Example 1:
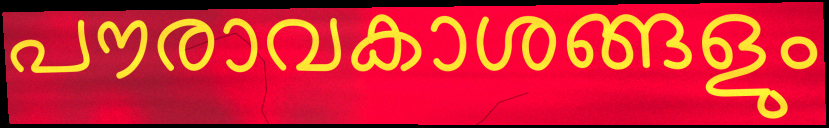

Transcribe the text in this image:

പൗരാവകാശങ്ങളും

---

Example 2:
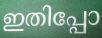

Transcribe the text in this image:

ഇതിപ്പോ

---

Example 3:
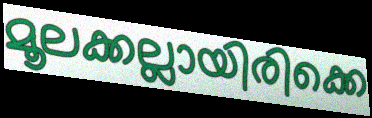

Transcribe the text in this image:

മൂലക്കല്ലായിരിക്കെ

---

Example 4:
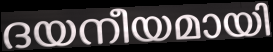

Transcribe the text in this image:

ദയനീയമായി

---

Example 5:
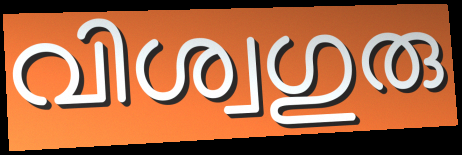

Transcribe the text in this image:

വിശ്വഗുരു